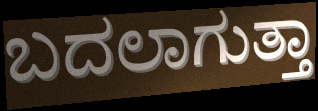
ಬದಲಾಗುತ್ತಾ